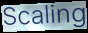
Scaling